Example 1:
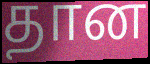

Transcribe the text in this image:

தான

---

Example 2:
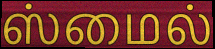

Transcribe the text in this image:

ஸ்மைல்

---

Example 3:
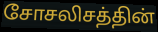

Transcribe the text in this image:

சோசலிசத்தின்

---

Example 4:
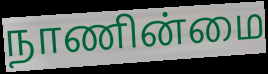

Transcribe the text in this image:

நாணின்மை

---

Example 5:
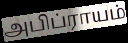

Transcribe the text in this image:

அபிப்ராயம்